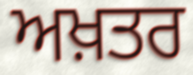
ਅਖ਼ਤਰ